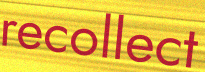
recollect